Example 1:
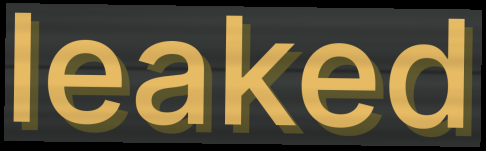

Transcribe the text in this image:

leaked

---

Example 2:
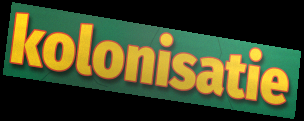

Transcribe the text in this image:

kolonisatie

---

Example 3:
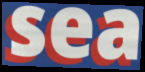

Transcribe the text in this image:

sea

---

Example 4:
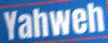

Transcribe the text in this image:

Yahweh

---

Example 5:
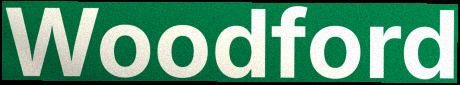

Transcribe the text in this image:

Woodford